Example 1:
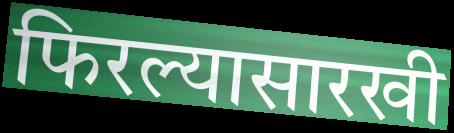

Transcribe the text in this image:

फिरल्यासारखी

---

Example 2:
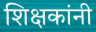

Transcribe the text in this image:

शिक्षकांनी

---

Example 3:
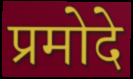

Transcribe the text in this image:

प्रमोदे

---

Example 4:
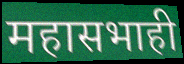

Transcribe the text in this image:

महासभाही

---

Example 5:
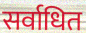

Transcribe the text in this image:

सर्वाधित